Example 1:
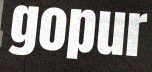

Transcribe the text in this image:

gopur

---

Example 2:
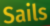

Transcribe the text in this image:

Sails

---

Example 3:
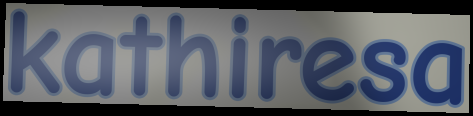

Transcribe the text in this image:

kathiresa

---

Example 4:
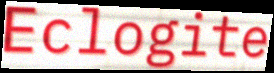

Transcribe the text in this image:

Eclogite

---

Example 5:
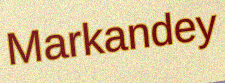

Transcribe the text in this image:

Markandey